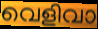
വെളിവാ